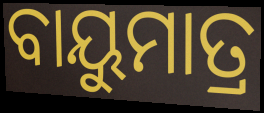
ବାୟୁମାତ୍ର